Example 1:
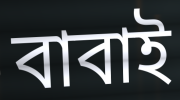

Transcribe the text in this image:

বাবাই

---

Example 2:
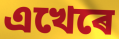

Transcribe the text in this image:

এখেৰে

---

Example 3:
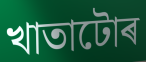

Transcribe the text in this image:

খাতাটোৰ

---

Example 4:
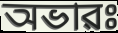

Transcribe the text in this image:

অভাৱঃ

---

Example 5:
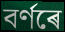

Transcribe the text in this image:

বৰ্ণৰে